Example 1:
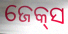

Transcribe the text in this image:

ଜେକ୍‍ସ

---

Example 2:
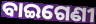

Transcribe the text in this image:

ବାଇଗେଣୀ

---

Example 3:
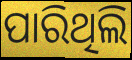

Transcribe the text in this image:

ପାରିଥିଲି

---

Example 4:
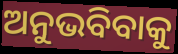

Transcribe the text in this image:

ଅନୁଭବିବାକୁ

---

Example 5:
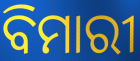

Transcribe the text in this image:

ବିମାରୀ